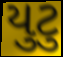
યુટુ